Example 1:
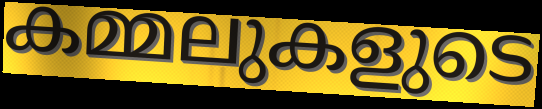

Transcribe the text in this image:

കമ്മലുകളുടെ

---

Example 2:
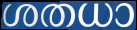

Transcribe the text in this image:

ശതധാ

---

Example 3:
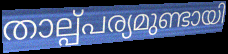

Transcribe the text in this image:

താല്പ്പര്യമുണ്ടായി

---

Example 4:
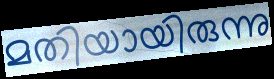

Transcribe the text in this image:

മതിയായിരുന്നു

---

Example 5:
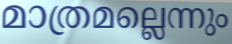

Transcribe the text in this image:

മാത്രമല്ലെന്നും